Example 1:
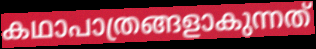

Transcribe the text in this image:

കഥാപാത്രങ്ങളാകുന്നത്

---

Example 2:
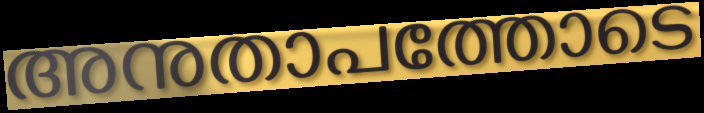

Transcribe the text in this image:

അനുതാപത്തോടെ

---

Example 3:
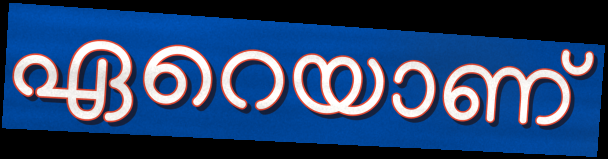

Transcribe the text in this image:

ഏറെയാണ്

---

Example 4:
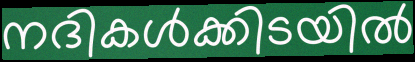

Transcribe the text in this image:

നദികൾക്കിടയിൽ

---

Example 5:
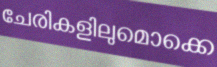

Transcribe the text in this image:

ചേരികളിലുമൊക്കെ